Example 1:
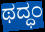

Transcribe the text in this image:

ಥದ್ಧಂ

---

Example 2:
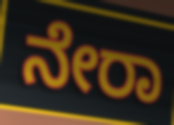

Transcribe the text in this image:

ನೇರಾ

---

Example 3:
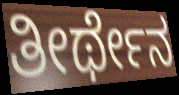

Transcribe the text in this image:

ತೀರ್ಥೇನ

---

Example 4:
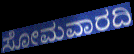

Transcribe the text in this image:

ಸೋಮವಾರದಿ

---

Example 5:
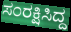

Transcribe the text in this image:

ಸಂರಕ್ಷಿಸಿದ್ದ